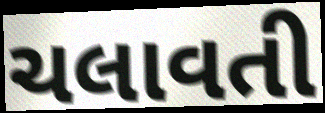
ચલાવતી